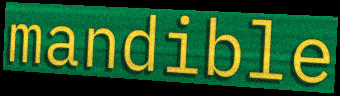
mandible